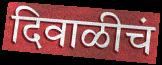
दिवाळीचं